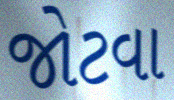
જોટવા